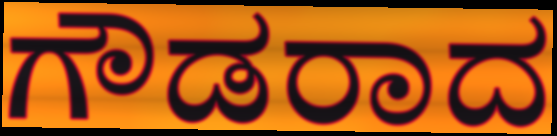
ಗೌಡರಾದ